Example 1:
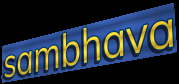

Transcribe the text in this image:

sambhava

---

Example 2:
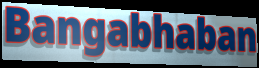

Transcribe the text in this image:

Bangabhaban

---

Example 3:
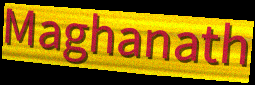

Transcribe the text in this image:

Maghanath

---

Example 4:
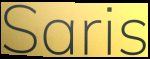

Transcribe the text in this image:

Saris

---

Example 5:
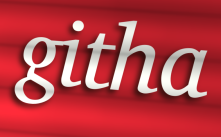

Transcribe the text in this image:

githa